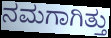
ನಮಗಾಗಿತ್ತು